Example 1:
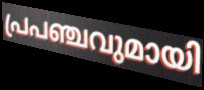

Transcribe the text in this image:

പ്രപഞ്ചവുമായി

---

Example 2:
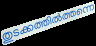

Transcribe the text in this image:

തുടക്കത്തിൽത്തന്നെ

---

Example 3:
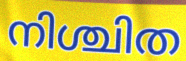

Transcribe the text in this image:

നിശ്ചിത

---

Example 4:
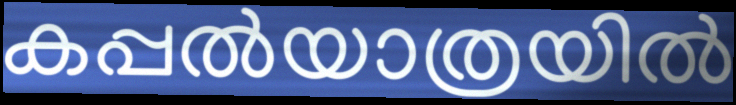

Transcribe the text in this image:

കപ്പൽയാത്രയിൽ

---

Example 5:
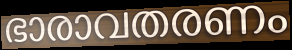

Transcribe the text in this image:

ഭാരാവതരണം